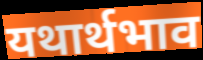
यथार्थभाव